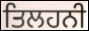
ਤਿਲਹਨੀ